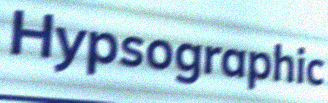
Hypsographic